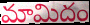
మామిదం